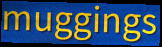
muggings